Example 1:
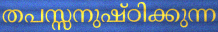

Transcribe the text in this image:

തപസ്സനുഷ്ഠിക്കുന്ന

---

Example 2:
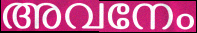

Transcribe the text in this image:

അവനേം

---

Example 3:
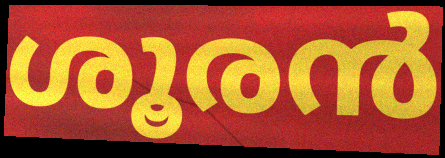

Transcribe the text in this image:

ശൂരൻ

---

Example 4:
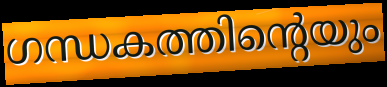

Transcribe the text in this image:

ഗന്ധകത്തിന്റെയും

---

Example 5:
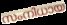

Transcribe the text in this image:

സംനിധായ